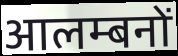
आलम्बनों